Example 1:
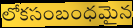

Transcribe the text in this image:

లోకసంబంధమైన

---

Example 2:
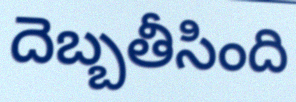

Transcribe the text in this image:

దెబ్బతీసింది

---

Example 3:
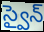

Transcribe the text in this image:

స్వైన్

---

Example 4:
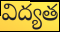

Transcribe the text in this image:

విద్యత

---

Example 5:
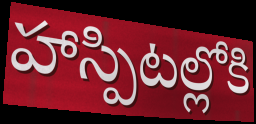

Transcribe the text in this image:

హాస్పిటల్లోకి